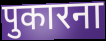
पुकारना